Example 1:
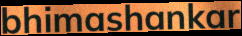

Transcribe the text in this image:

bhimashankar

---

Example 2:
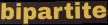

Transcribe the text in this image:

bipartite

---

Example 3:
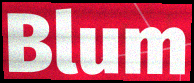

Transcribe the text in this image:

Blum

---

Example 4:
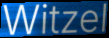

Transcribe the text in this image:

Witzel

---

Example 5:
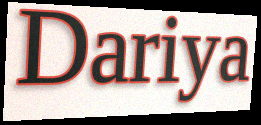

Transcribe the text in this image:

Dariya